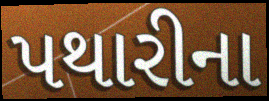
પથારીના